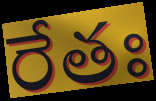
రేతః